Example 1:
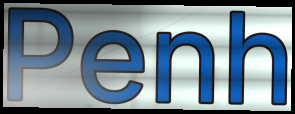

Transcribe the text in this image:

Penh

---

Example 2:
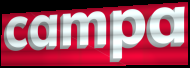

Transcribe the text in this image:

campa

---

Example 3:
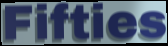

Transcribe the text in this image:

Fifties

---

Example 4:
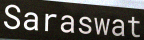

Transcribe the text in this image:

Saraswat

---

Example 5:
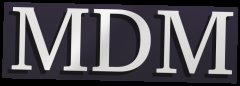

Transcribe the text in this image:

MDM